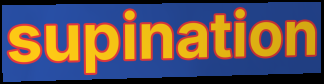
supination